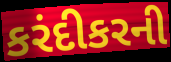
કરંદીકરની